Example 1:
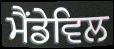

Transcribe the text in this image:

ਮੈਂਡੇਵਿਲ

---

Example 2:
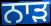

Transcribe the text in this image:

ਨਾੜ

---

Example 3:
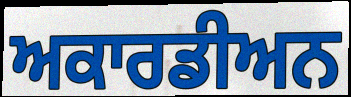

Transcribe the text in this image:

ਅਕਾਰਡੀਅਨ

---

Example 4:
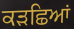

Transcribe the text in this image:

ਕੜਛਿਆਂ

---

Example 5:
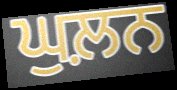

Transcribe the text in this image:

ਘੁਲ਼ਨ